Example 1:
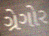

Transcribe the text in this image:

ગ્રેગોર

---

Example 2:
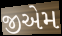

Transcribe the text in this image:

જીએમ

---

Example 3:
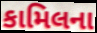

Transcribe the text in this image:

કામિલના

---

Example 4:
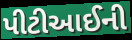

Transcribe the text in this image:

પીટીઆઈની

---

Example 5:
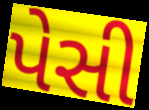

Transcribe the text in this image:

પેસી